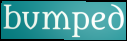
bumped